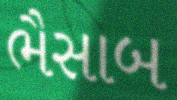
ભૈસાબ